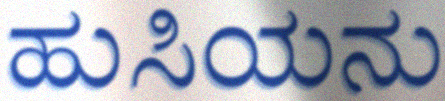
ಹುಸಿಯನು